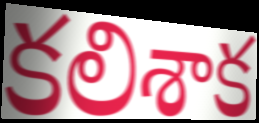
కలిశాక